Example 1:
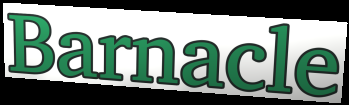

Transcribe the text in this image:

Barnacle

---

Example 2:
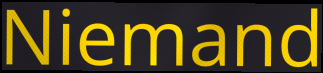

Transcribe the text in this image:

Niemand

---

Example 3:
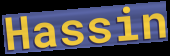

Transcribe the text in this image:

Hassin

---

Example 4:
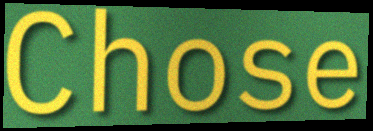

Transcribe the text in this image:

Chose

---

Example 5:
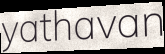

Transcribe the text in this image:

yathavan